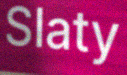
Slaty